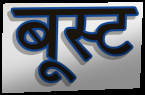
बूस्ट